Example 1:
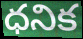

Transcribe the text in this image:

ధనిక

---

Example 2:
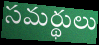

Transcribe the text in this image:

సమర్థులు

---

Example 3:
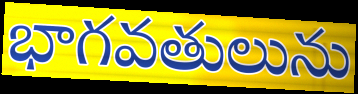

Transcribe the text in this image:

భాగవతులును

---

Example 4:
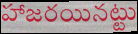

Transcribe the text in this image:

హాజరయినట్టు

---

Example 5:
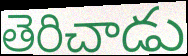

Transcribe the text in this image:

తెరిచాడు